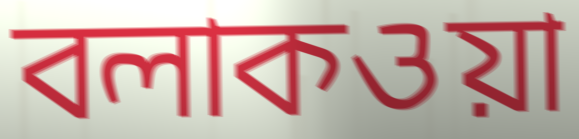
বলাকওয়া